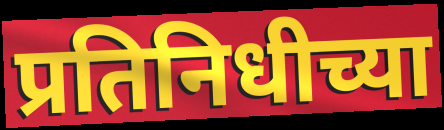
प्रतिनिधीच्या